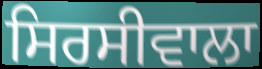
ਸਿਰਸੀਵਾਲਾ